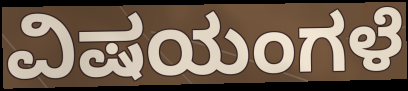
ವಿಷಯಂಗಳೆ